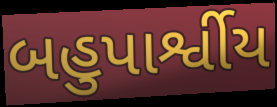
બહુપાર્શ્વીય